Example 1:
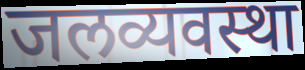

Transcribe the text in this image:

जलव्यवस्था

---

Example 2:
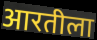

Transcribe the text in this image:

आरतीला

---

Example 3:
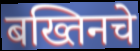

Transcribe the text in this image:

बख्तिनचे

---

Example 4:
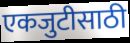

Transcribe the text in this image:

एकजुटीसाठी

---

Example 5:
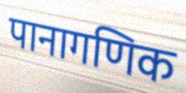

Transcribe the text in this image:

पानागणिक